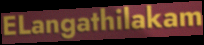
ELangathilakam